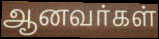
ஆனவர்கள்